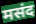
मसंद